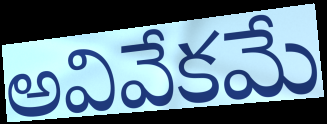
అవివేకమే